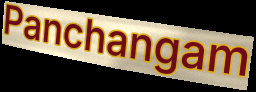
Panchangam